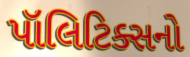
પૉલિટિક્સનો